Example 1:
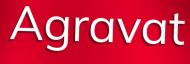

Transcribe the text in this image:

Agravat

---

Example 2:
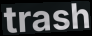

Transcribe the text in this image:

trash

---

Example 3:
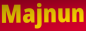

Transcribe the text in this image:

Majnun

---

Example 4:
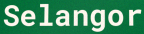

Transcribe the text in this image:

Selangor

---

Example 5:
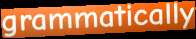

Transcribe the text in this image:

grammatically